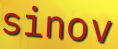
sinov